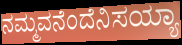
ನಮ್ಮವನೆಂದೆನಿಸಯ್ಯಾ